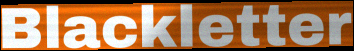
Blackletter